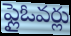
ఫ్లైఓవర్లు